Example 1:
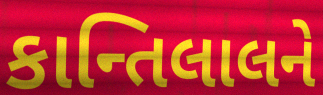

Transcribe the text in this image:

કાન્તિલાલને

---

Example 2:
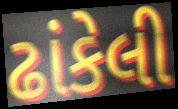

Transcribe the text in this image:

ઢાંકેલી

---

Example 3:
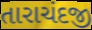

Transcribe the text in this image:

તારાચંદજી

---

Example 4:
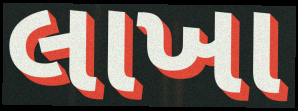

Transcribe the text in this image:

લાખા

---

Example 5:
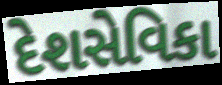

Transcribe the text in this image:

દેશસેવિકા